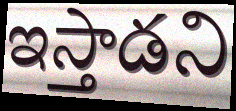
ఇస్తాడని